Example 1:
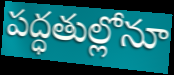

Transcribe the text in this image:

పద్ధతుల్లోనూ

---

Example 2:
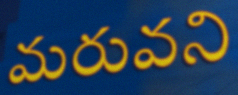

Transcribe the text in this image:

మరువని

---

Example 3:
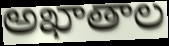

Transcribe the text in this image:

అఖాతాల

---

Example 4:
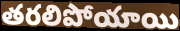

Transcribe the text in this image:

తరలిపోయాయి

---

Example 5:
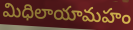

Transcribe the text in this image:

మిధిలాయామహం